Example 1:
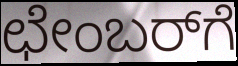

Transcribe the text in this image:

ಛೇಂಬರ್‌ಗೆ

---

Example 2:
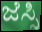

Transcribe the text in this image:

ಜೆಸ್ಸಿ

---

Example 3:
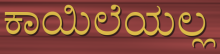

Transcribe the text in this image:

ಕಾಯಿಲೆಯಲ್ಲ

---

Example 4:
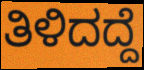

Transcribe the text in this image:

ತಿಳಿದದ್ದೆ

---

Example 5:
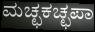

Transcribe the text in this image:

ಮಚ್ಛಕಚ್ಛಪಾ